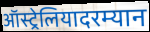
ऑस्ट्रेलियादरम्यान